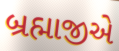
બ્રહ્માજીએ